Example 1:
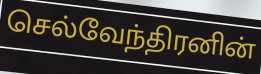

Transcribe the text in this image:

செல்வேந்திரனின்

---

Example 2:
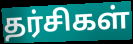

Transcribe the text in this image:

தர்சிகள்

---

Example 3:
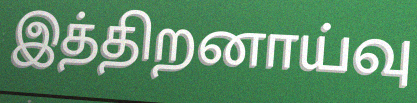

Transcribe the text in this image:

இத்திறனாய்வு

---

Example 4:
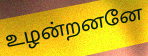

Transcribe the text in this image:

உழன்றனனே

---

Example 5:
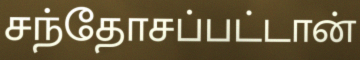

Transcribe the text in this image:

சந்தோசப்பட்டான்